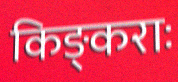
किङ्कराः